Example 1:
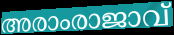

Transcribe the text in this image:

അരാംരാജാവ്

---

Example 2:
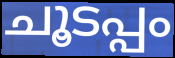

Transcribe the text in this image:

ചൂടപ്പം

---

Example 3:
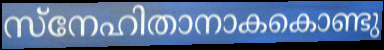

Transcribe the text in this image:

സ്നേഹിതാനാകകൊണ്ടു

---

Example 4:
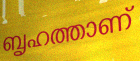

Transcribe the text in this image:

ബൃഹത്താണ്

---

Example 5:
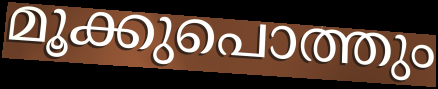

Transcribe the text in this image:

മൂക്കുപൊത്തും